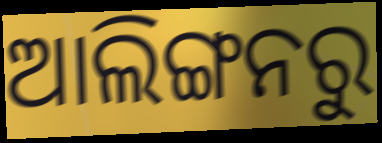
ଆଲିଙ୍ଗନରୁ